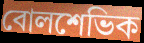
বোলশেভিক